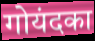
गोयंदका